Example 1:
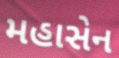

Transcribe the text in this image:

મહાસેન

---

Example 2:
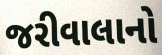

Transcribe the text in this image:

જરીવાલાનો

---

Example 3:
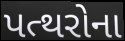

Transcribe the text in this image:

પત્થરોના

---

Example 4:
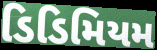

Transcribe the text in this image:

ડિડિમિયમ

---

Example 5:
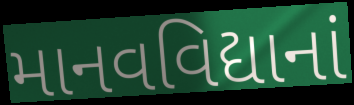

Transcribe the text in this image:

માનવવિદ્યાનાં